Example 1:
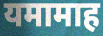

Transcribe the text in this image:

यमामाह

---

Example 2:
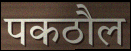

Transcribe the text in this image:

पकठौल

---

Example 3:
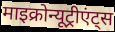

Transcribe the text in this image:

माइक्रोन्यूट्रीएंट्स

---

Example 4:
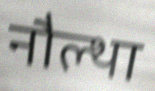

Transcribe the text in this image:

नौल्था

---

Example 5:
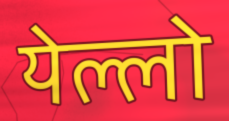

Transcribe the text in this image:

येल्लो